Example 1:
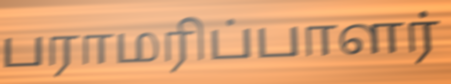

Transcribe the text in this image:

பராமரிப்பாளர்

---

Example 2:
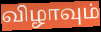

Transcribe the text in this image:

விழாவும்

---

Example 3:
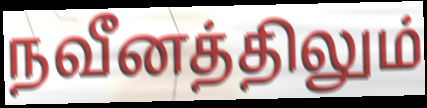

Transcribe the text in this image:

நவீனத்திலும்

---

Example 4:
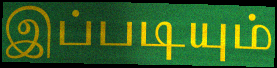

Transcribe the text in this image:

இப்படியும்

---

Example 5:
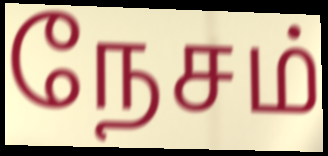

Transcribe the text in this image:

நேசம்